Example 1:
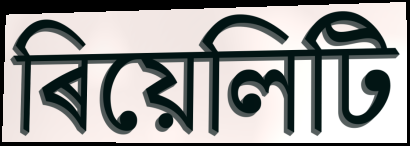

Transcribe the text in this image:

ৰিয়েলিটি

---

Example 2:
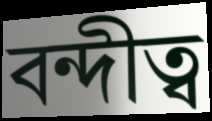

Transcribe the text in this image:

বন্দীত্ব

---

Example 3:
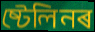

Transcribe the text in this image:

ষ্টেলিনৰ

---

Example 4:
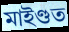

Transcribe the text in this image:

মাইণ্ডত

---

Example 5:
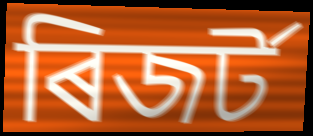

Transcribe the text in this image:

ৰিজৰ্ট